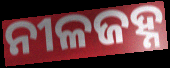
ନୀଳଜହ୍ନ